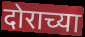
दोराच्या